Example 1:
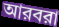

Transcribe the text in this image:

আরবরা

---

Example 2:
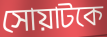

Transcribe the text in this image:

সোয়াটকে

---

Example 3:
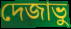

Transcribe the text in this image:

দেজাভু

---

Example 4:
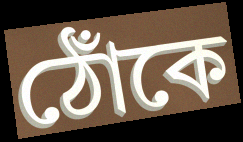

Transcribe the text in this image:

ঠোঁকে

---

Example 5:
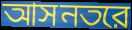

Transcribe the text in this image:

আসনতরে